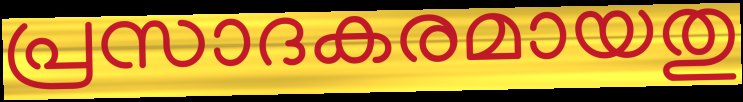
പ്രസാദകരമായതു